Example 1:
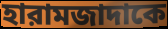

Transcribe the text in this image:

হারামজাদাকে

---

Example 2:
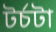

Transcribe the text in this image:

টর্চটা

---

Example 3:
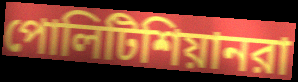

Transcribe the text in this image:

পোলিটিশিয়ানরা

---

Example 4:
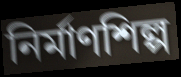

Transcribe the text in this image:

নির্মাণশিল্প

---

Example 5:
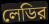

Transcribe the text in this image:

লেডির